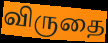
விருதை